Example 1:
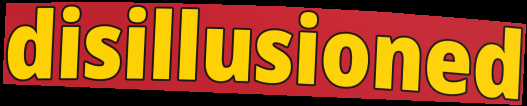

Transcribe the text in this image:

disillusioned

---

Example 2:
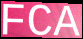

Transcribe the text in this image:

FCA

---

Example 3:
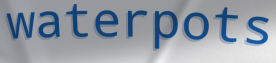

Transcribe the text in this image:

waterpots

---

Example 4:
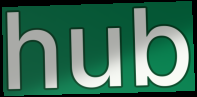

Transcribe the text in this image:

hub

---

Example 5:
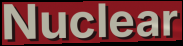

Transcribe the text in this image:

Nuclear